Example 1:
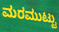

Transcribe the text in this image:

ಮರಮುಟ್ಟು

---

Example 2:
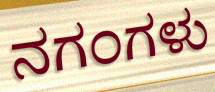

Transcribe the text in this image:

ನಗಂಗಳು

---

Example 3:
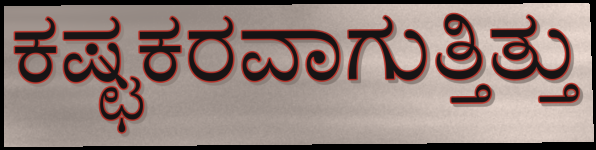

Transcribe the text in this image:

ಕಷ್ಟಕರವಾಗುತ್ತಿತ್ತು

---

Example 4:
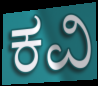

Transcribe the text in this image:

ಕವಿ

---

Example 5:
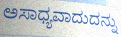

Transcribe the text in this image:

ಅಸಾಧ್ಯವಾದುದನ್ನು